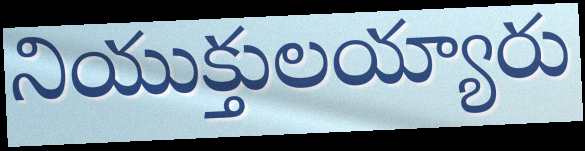
నియుక్తులయ్యారు